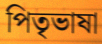
পিতৃভাষা